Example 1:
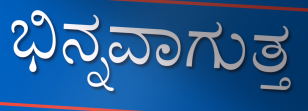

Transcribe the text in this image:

ಭಿನ್ನವಾಗುತ್ತ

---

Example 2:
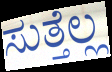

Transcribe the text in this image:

ಸುತ್ತೆಲ್ಲ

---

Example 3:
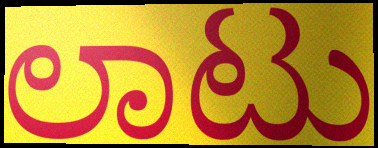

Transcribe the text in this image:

ಲಾಟು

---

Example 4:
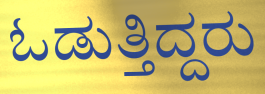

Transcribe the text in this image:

ಓಡುತ್ತಿದ್ದರು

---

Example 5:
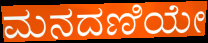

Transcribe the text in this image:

ಮನದಣಿಯೇ